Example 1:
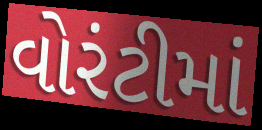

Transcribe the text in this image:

વોરંટીમાં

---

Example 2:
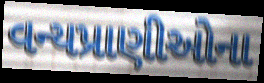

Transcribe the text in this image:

વન્યપ્રાણીઓના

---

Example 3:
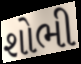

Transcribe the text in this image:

શોભી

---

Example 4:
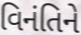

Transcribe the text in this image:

વિનંતિને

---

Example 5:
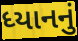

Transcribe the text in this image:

ધ્યાનનું